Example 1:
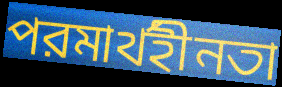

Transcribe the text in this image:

পরমার্থহীনতা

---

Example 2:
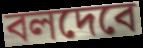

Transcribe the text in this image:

বলদেবে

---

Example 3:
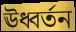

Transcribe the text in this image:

ঊধ্বর্তন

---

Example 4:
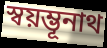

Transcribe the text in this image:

স্বয়ম্ভূনাথ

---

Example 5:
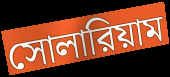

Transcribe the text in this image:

সোলারিয়াম